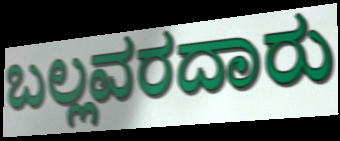
ಬಲ್ಲವರದಾರು